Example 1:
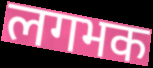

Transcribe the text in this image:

लगभक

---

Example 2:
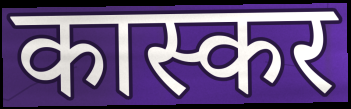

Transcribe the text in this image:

कास्कर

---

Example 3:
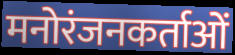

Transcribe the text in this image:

मनोरंजनकर्ताओं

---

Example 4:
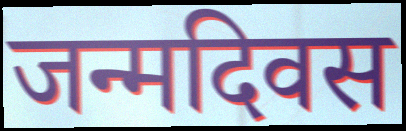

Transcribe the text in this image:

जन्मदिवस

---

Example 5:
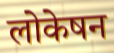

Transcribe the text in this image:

लोकेषन